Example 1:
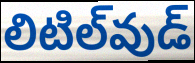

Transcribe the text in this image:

లిటిల్‌వుడ్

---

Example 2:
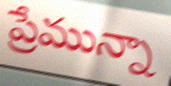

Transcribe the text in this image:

ప్రేమున్నా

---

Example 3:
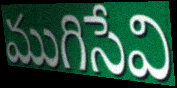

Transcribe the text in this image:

ముగిసేవి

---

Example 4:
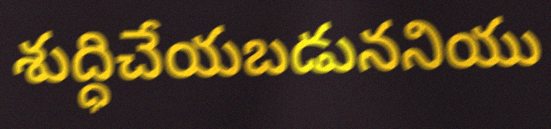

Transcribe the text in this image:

శుద్ధిచేయబడుననియు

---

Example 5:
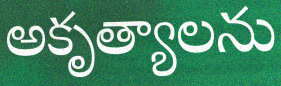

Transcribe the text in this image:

అకృత్యాలను